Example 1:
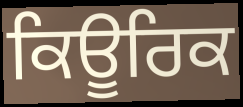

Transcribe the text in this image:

ਕਿਊਰਿਕ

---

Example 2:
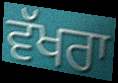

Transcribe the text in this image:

ਵੱਖਰਾ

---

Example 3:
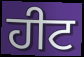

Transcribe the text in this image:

ਹੀਟ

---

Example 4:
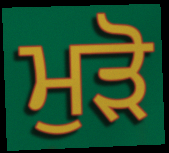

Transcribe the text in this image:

ਮੁਡ਼ੋ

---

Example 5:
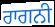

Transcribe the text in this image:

ਰਾਗਨੀ